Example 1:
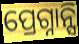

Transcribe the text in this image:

ପ୍ରେଗ୍ନାନ୍ସି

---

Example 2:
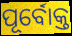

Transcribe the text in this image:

ପୂର୍ବୋକ୍ତ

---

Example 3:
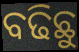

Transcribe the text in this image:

ବଢିଛୁ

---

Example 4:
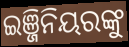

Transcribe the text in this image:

ଇଞ୍ଜିନିୟରଙ୍କୁ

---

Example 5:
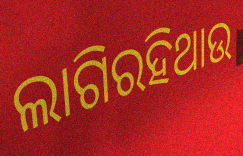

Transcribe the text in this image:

ଲାଗିରହିଥାଉ